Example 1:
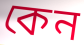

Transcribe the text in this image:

কেন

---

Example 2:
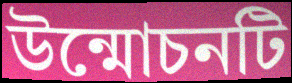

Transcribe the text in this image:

উন্মোচনটি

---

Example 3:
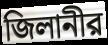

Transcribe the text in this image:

জিলানীর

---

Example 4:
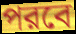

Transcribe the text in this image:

পরবে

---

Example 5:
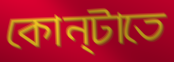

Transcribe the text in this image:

কোন্‌টাতে